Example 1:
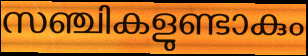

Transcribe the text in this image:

സഞ്ചികളുണ്ടാകും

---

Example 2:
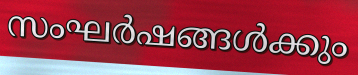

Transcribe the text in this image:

സംഘർഷങ്ങൾക്കും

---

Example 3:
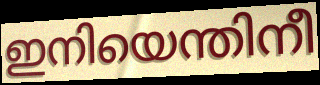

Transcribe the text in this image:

ഇനിയെന്തിനീ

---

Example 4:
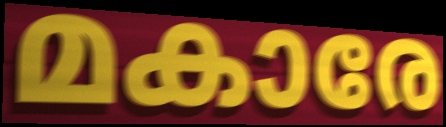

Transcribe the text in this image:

മകാരേ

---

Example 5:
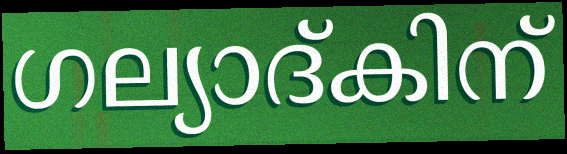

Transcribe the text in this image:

ഗല്യാദ്കിന്